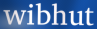
wibhut